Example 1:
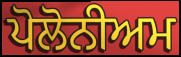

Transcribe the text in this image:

ਪੋਲੋਨੀਅਮ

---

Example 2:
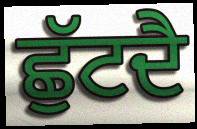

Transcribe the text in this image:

ਛੁੱਟਦੈ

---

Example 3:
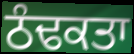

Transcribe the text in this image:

ਠੰਢਕਤਾ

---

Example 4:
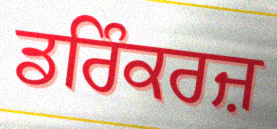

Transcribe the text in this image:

ਡਰਿੰਕਰਜ਼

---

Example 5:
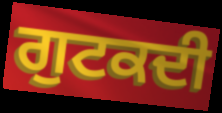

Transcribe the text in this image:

ਗੁਟਕਦੀ